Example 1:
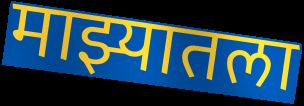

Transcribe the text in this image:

माझ्यातला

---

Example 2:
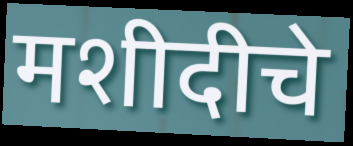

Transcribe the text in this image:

मशीदीचे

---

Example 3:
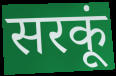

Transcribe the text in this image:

सरकूं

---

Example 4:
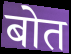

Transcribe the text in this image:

बोत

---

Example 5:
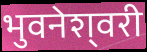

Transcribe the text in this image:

भुवनेश्वरी